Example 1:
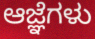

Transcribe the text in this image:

ಆಜ್ಞೆಗಳು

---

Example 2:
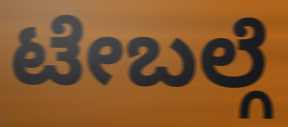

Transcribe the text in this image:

ಟೇಬಲ್ಗೆ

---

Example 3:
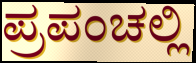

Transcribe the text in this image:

ಪ್ರಪಂಚಲ್ಲಿ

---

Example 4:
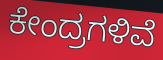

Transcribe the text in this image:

ಕೇಂದ್ರಗಳಿವೆ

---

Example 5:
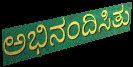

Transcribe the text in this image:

ಅಭಿನಂದಿಸಿತು